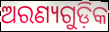
ଅରଣ୍ୟଗୁଡ଼ିକ